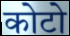
कोटो